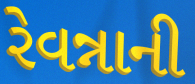
રેવન્નાની